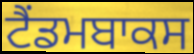
ਟੈਂਡਮਬਾਕਸ